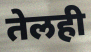
तेलही